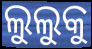
ଲୁଲୁକୁ